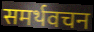
समर्थवचन